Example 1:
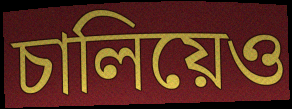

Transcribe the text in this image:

চালিয়েও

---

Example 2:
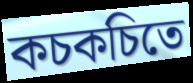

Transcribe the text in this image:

কচকচিতে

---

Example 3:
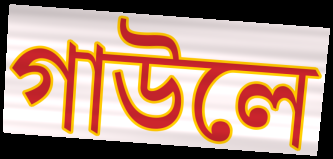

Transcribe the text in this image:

গাউলে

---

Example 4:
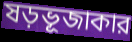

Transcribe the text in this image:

ষড়ভূজাকার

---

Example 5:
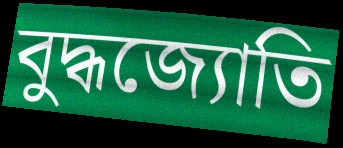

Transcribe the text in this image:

বুদ্ধজ্যোতি